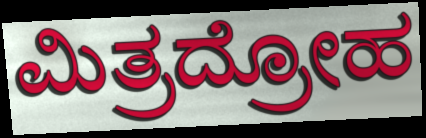
ಮಿತ್ರದ್ರೋಹ